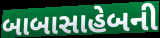
બાબાસાહેબની